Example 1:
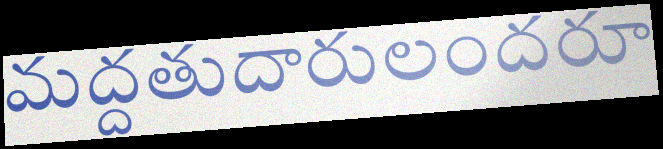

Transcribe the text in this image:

మద్దతుదారులందరూ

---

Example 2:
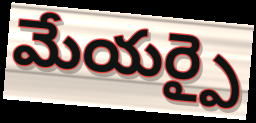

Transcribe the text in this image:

మేయర్పై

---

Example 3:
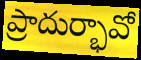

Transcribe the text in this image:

ప్రాదుర్భావో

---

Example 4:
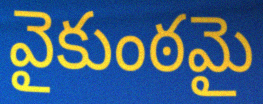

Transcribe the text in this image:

వైకుంఠమై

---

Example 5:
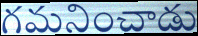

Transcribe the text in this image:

గమనించాడు